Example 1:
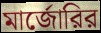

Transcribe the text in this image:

মার্জোরির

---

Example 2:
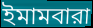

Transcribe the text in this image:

ইমামবারা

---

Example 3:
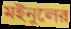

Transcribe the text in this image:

মইনুলের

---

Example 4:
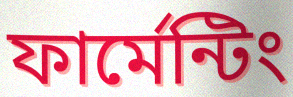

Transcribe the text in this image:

ফার্মেন্টিং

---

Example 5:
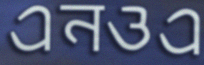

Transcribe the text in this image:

এনওএ